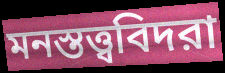
মনস্তত্ত্ববিদরা